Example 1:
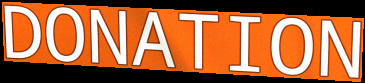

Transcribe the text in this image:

DONATION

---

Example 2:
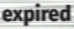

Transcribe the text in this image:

expired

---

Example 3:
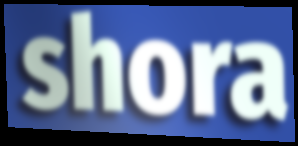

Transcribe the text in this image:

shora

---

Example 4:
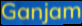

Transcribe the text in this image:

Ganjam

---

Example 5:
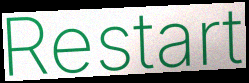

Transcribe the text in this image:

Restart